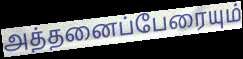
அத்தனைப்பேரையும்